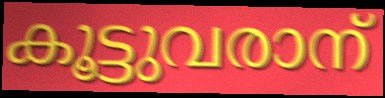
കൂട്ടുവരാന്